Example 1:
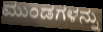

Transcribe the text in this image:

ಮುಂಡಗಳನ್ನು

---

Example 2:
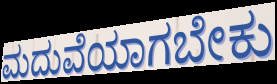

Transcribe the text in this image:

ಮದುವೆಯಾಗಬೇಕು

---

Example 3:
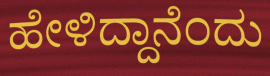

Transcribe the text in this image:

ಹೇಳಿದ್ದಾನೆಂದು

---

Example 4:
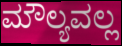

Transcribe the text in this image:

ಮೌಲ್ಯವಲ್ಲ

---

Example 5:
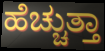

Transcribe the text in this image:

ಹೆಚ್ಚುತ್ತಾ